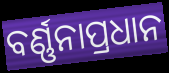
ବର୍ଣ୍ଣନାପ୍ରଧାନ